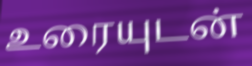
உரையுடன்